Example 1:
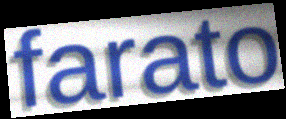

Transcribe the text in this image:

farato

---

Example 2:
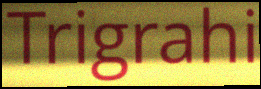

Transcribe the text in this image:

Trigrahi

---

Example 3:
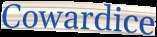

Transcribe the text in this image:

Cowardice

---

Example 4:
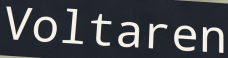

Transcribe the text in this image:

Voltaren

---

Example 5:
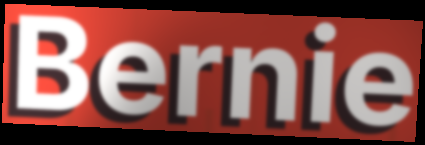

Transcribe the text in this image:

Bernie